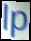
lp